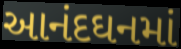
આનંદઘનમાં